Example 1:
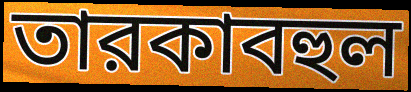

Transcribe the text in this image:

তারকাবহুল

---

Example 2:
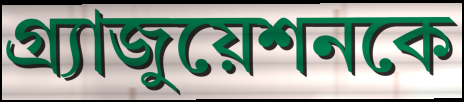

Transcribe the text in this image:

গ্র্যাজুয়েশনকে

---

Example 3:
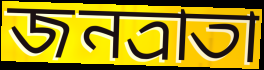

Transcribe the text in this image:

জনত্রাতা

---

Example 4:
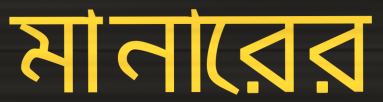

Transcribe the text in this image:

মানারের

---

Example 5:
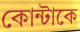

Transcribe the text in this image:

কোন্টাকে